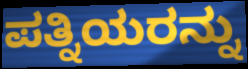
ಪತ್ನಿಯರನ್ನು